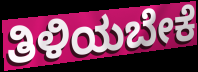
ತಿಳಿಯಬೇಕೆ